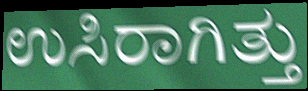
ಉಸಿರಾಗಿತ್ತು